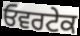
ਓਵਰਟੇਕ